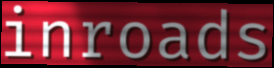
inroads